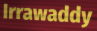
Irrawaddy